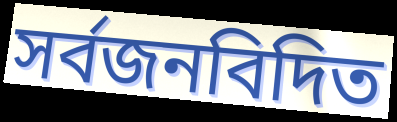
সর্বজনবিদিত